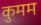
कुमम